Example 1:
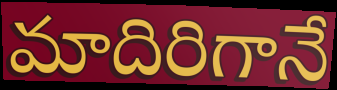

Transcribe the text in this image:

మాదిరిగానే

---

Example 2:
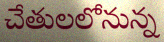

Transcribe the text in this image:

చేతులలోనున్న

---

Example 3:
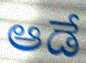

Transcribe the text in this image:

ఆడే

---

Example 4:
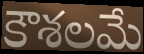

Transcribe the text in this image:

కౌశలమే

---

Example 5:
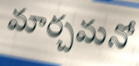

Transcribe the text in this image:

మార్చమనో